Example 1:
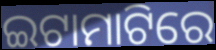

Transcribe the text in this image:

ଇଟାମାଟିରେ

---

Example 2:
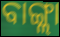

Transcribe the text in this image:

ବାଙ୍ଗ୍ଲା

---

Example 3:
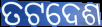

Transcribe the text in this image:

ତଟଦେଶ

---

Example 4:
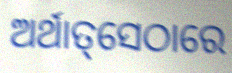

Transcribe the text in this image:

ଅର୍ଥାତ୍‌ସେଠାରେ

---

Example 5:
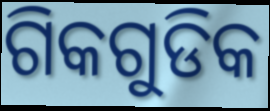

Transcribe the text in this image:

ଗିକଗୁଡିକ